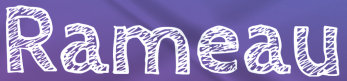
Rameau